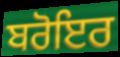
ਬਰੋਇਰ